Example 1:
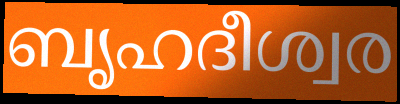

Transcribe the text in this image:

ബൃഹദീശ്വര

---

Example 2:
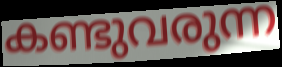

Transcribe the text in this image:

കണ്ടുവരുന്ന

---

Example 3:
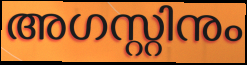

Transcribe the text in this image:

അഗസ്റ്റിനും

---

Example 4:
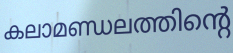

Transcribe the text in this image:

കലാമണ്ഡലത്തിന്റെ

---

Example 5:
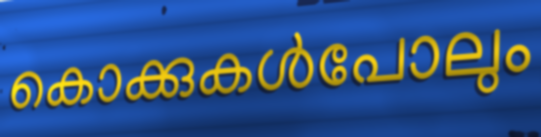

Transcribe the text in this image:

കൊക്കുകൾപോലും